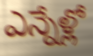
ఎన్నేళ్లో